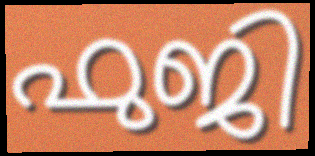
ഫുജി